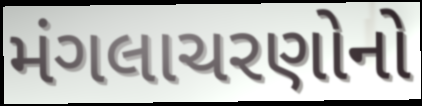
મંગલાચરણોનો